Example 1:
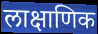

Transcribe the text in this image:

लाक्षाणिक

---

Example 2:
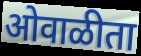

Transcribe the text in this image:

ओवाळीता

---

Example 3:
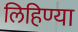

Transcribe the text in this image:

लिहिण्या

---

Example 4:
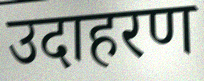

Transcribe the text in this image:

उदाहरण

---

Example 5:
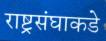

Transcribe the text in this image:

राष्ट्रसंघाकडे